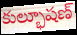
కుల్భూషణ్